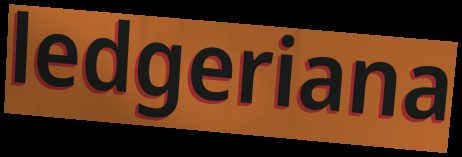
ledgeriana